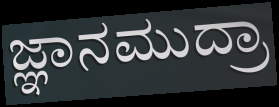
ಜ್ಞಾನಮುದ್ರಾ